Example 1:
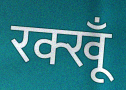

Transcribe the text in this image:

रक्खूँ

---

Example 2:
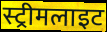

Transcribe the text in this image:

स्ट्रीमलाइट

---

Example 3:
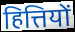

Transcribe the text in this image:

हित्तियों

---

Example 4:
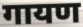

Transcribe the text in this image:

गायण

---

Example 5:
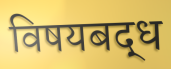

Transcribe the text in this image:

विषयबद्ध